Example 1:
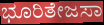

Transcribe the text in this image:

ಭೂರಿತೇಜಸಾ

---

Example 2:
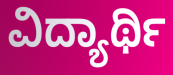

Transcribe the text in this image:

ವಿದ್ಯಾರ್ಥಿ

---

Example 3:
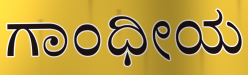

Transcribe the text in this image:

ಗಾಂಧೀಯ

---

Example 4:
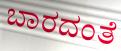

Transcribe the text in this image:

ಬಾರದಂತೆ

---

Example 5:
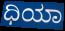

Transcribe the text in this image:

ಧಿಯಾ